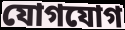
যোগযোগ